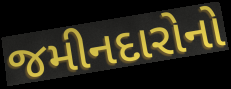
જમીનદારોનો